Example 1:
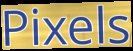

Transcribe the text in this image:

Pixels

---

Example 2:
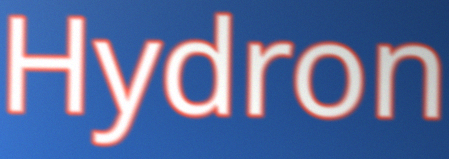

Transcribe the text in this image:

Hydron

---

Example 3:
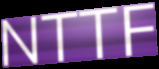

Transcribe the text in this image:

NTTF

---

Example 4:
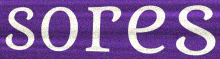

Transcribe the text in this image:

sores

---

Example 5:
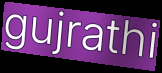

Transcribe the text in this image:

gujrathi